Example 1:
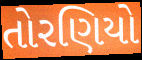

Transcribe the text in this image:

તોરણિયો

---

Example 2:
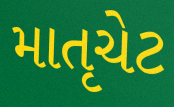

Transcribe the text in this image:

માતૃચેટ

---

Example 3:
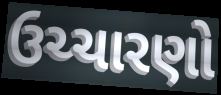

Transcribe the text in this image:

ઉચ્ચારણો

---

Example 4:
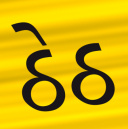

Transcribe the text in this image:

ઠેઠ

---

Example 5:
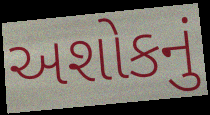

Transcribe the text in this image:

અશોકનું